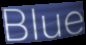
Blue